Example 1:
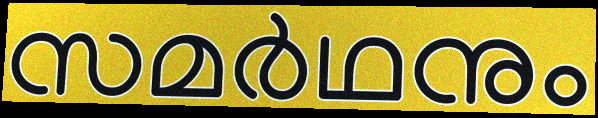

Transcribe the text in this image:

സമർഥനും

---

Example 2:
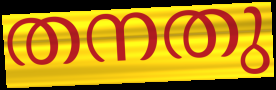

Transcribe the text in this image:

തനതു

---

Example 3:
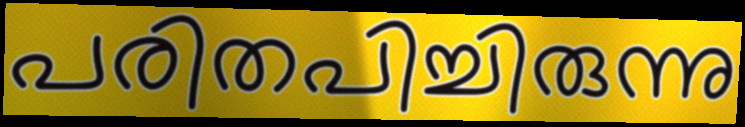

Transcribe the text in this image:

പരിതപിച്ചിരുന്നു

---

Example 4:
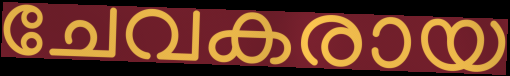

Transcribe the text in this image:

ചേവകരായ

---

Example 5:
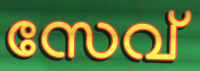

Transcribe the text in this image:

സേവ്